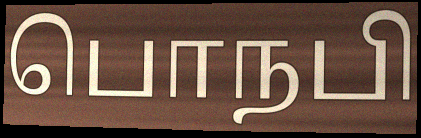
பொநபி